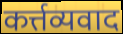
कर्त्तव्यवाद